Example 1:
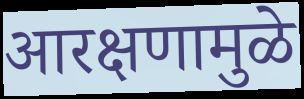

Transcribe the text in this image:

आरक्षणामुळे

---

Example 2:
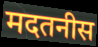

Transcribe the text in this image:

मदतनीस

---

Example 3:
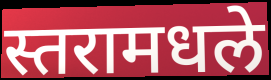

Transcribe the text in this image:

स्तरामधले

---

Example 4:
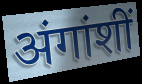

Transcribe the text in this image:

अंगांशीं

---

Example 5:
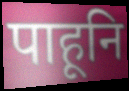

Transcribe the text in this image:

पाहूनि